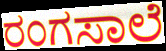
ರಂಗಸಾಲೆ